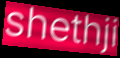
shethji